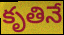
కృతినే